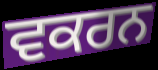
ਵਕਰਨ